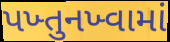
પખ્તુનખ્વામાં